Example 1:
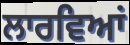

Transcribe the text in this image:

ਲਾਰਵਿਆਂ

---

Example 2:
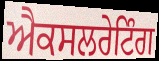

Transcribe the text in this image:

ਐਕਸਲਰੇਟਿੰਗ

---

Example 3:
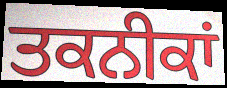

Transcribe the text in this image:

ਤਕਨੀਕਾਂ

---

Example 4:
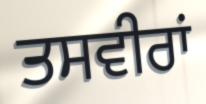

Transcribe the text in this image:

ਤਸਵੀਰਾਂ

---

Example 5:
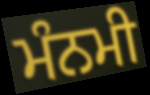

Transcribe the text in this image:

ਮੰਨਮੀ